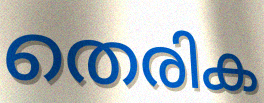
തെരിക